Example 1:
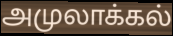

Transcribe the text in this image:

அமுலாக்கல்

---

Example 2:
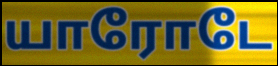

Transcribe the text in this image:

யாரோடே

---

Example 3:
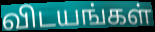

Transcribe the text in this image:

விடயங்கள்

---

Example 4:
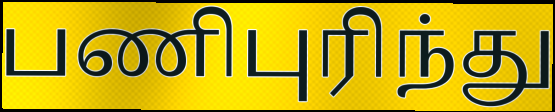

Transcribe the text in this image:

பணிபுரிந்து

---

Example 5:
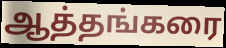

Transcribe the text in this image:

ஆத்தங்கரை